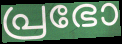
പ്രഭോ